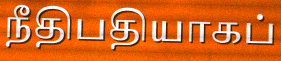
நீதிபதியாகப்